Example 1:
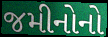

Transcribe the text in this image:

જમીનોનો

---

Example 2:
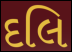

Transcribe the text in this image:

દલિ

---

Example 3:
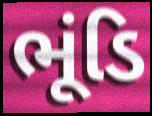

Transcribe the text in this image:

ભૂંડિ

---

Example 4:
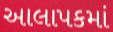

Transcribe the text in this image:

આલાપકમાં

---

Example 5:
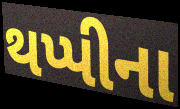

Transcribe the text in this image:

થપ્પીના